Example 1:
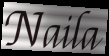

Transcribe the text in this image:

Naila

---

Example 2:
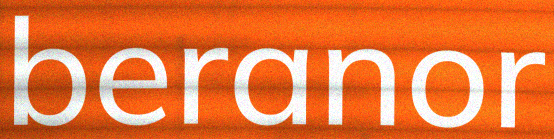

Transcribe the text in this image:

beranor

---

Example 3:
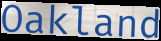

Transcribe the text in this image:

Oakland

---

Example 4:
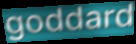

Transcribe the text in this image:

goddard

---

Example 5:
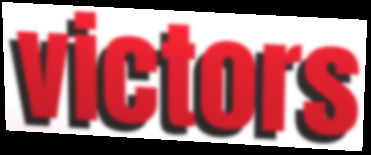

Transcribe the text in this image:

victors